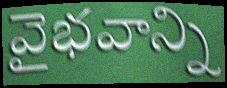
వైభవాన్ని